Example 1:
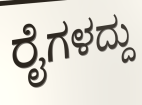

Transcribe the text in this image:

ರೈಗಳದ್ದು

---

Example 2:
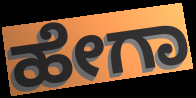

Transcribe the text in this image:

ಹೇಗಾ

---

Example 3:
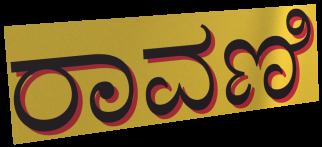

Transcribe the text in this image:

ರಾವಣಿ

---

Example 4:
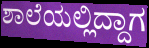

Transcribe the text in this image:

ಶಾಲೆಯಲ್ಲಿದ್ದಾಗ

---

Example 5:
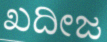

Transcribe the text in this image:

ಖದೀಜ